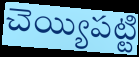
చెయ్యిపట్టి